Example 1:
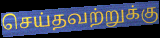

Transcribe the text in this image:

செய்தவற்றுக்கு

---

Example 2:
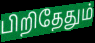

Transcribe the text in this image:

பிறிதேதும்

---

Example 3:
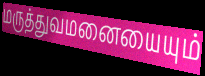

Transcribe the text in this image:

மருத்துவமனையையும்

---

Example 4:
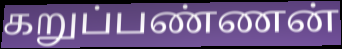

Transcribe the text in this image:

கறுப்பண்ணன்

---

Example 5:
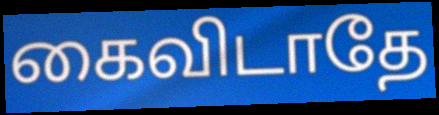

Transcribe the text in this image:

கைவிடாதே